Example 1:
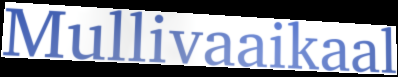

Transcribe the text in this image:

Mullivaaikaal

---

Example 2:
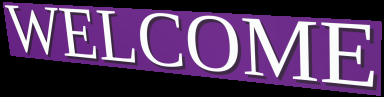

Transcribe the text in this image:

WELCOME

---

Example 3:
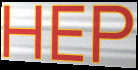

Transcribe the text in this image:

HEP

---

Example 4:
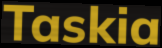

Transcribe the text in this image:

Taskia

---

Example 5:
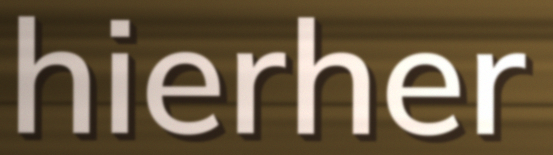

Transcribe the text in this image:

hierher